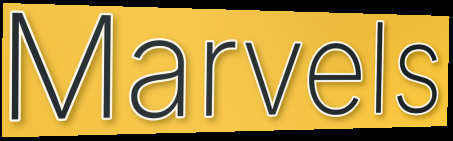
Marvels